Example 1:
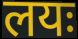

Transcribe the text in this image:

लयः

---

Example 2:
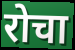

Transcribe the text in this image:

रोचा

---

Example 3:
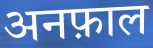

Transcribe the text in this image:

अनफ़ाल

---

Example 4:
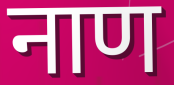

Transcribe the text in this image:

नाण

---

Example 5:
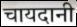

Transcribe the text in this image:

चायदानी